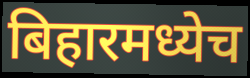
बिहारमध्येच